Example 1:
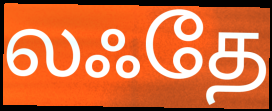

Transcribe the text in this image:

லஃதே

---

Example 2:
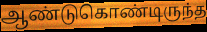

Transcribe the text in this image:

ஆண்டுகொண்டிருந்த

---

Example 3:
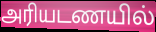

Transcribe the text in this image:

அரியடணயில்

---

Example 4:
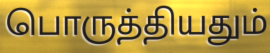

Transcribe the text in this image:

பொருத்தியதும்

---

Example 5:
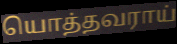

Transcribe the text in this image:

யொத்தவராய்